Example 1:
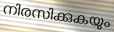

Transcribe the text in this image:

നിരസിക്കുകയും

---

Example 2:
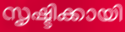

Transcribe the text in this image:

സൃഷ്ടിക്കായി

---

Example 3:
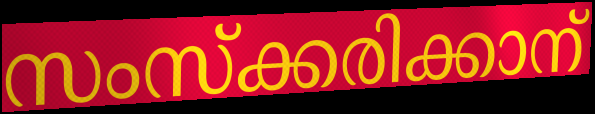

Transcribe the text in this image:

സംസ്ക്കരിക്കാന്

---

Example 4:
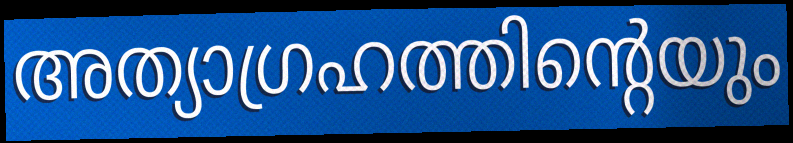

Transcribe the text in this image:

അത്യാഗ്രഹത്തിന്റെയും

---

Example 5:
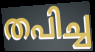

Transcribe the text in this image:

തപിച്ച